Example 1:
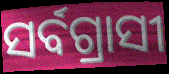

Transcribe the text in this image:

ସର୍ବଗ୍ରାସୀ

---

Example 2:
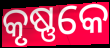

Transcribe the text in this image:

କୃଷ୍ଣକେ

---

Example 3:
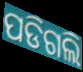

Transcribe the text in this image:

ପଡିଗଲି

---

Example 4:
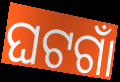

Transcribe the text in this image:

ଘଟଗାଁ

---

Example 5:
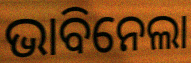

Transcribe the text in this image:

ଭାବିନେଲା